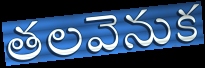
తలవెనుక